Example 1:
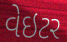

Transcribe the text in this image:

વેઇટર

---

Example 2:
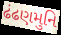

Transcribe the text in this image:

ઢંઢણમુનિ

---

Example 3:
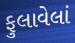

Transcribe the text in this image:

ફુલાવેલાં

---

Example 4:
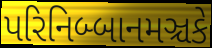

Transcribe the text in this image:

પરિનિબ્બાનમઞ્ચકે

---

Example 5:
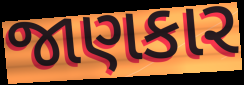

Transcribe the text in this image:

જાણકાર